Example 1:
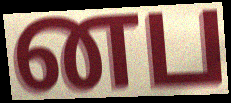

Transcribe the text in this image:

னப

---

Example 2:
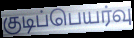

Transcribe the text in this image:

குடிப்பெயர்வு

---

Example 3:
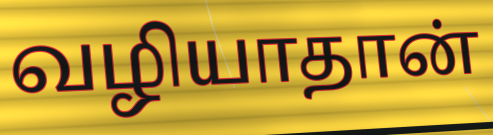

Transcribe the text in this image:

வழியாதான்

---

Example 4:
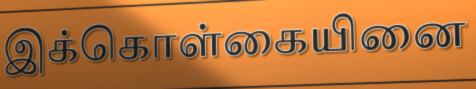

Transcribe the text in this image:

இக்கொள்கையினை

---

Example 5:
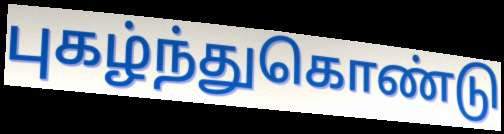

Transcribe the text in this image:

புகழ்ந்துகொண்டு